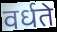
वर्धते